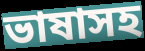
ভাষাসহ